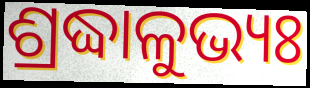
ଶ୍ରଦ୍ଧାଳୁଭ୍ୟଃ